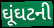
ઘૂંઘટની